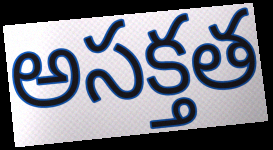
అసక్తత